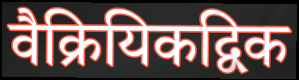
वैक्रियिकद्विक